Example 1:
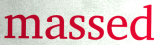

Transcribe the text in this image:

massed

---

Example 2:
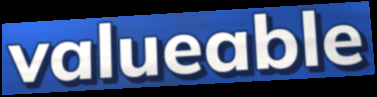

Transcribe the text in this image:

valueable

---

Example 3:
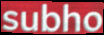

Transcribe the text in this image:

subho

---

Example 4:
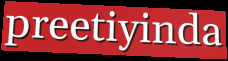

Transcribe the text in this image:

preetiyinda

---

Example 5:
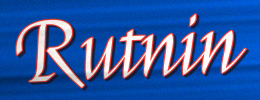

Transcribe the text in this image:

Rutnin